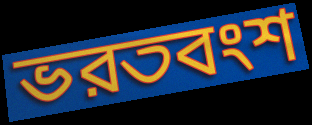
ভরতবংশ